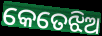
କେତେଝିଅ